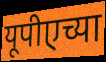
यूपीएच्या